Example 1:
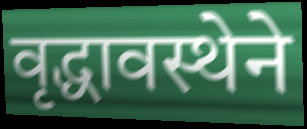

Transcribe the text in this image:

वृद्धावस्थेने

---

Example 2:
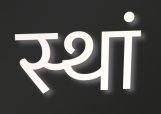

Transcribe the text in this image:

स्थां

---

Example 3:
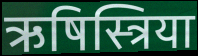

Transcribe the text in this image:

ऋषिस्त्रिया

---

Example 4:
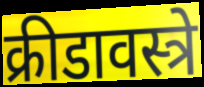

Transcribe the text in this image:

क्रीडावस्त्रे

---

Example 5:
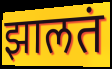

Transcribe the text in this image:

झालतं